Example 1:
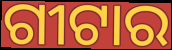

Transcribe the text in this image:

ଗୀଟାର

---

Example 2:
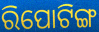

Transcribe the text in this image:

ରିପୋଟିଙ୍ଗ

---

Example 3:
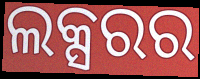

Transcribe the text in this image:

ଲକ୍ସରର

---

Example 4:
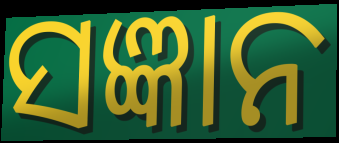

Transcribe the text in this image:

ସଜ୍ଞାନ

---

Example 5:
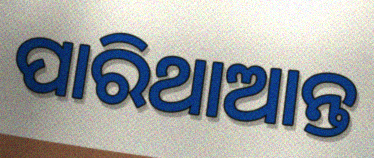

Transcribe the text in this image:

ପାରିଥାଆନ୍ତ